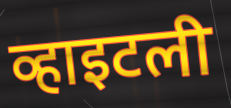
व्हाइटली